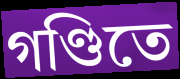
গণ্ডিতে